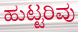
ಹುಟ್ಟರಿವು